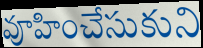
వూహించేసుకుని